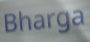
Bharga